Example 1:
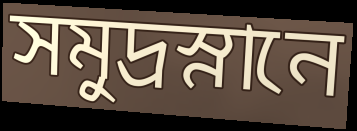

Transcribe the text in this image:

সমুদ্রস্নানে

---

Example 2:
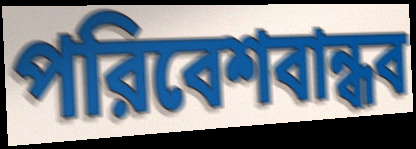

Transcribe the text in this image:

পরিবেশবান্ধব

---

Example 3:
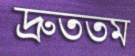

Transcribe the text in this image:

দ্রুততম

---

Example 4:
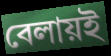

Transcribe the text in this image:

বেলায়ই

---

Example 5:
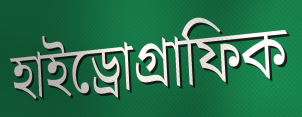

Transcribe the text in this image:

হাইড্রোগ্রাফিক